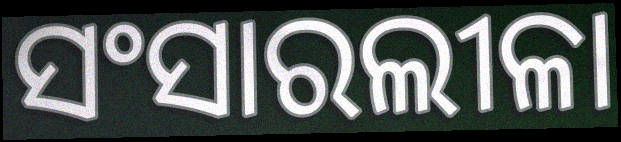
ସଂସାରଲୀଳା